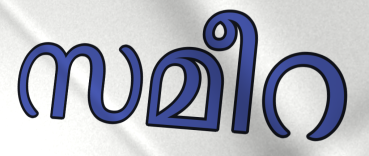
സമീറ